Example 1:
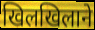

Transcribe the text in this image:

खिलखिलाने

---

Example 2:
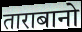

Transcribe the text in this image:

ताराबानो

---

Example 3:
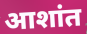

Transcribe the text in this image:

आशांत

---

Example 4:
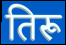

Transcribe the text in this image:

तिरू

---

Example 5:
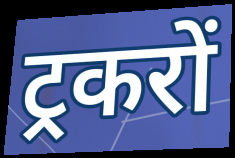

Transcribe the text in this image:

ट्रकरों